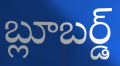
బ్లూబర్డ్